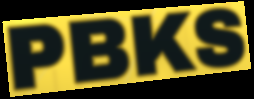
PBKS